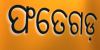
ଫତେଗଡ଼